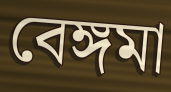
বেঙ্গমা